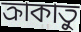
ক্রাকাতু